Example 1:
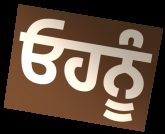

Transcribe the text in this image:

ਓਹਨੂੰ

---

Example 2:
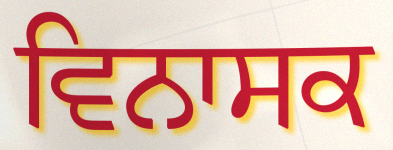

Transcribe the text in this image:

ਵਿਨਾਸਕ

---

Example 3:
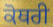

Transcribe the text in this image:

ਕੋਥਰੀ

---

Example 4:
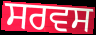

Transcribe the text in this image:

ਸਰਵਸ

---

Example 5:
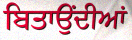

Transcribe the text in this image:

ਬਿਤਾਉਂਦੀਆਂ